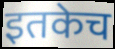
इतकेच